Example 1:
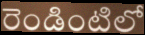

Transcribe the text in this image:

రెండింటిలో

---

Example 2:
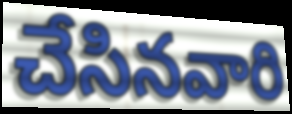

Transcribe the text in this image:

చేసినవారి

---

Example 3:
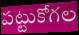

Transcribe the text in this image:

పట్టుకోగల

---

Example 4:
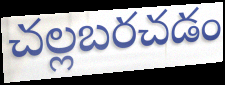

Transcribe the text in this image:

చల్లబరచడం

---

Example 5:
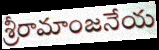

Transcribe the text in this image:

శ్రీరామాంజనేయ